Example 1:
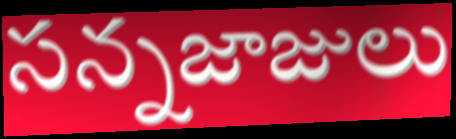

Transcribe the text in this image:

సన్నజాజులు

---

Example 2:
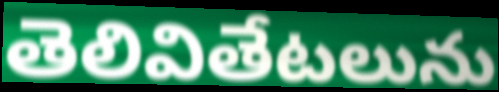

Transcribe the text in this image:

తెలివితేటలును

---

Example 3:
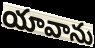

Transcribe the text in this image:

యావాను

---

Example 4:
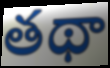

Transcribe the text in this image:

తథా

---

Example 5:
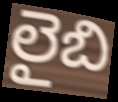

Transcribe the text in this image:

లైబి